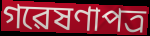
গৱেষণাপত্ৰ